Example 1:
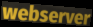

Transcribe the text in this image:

webserver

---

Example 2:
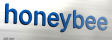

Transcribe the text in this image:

honeybee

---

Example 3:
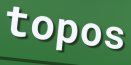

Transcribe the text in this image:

topos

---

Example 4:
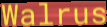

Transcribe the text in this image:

Walrus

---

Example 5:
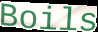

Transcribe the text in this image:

Boils